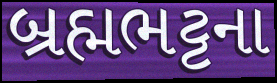
બ્રહ્મભટ્ટના